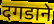
दगडाने